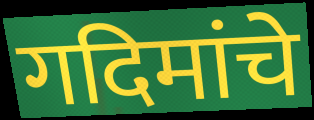
गदिमांचे